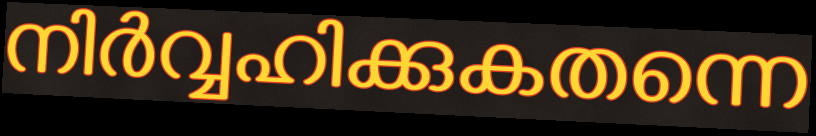
നിർവ്വഹിക്കുകതന്നെ